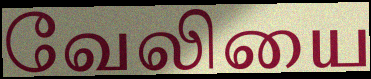
வேலியை